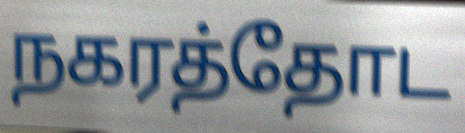
நகரத்தோட